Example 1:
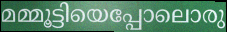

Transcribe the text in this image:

മമ്മൂട്ടിയെപ്പോലൊരു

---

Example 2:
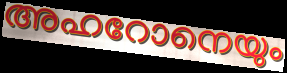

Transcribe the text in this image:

അഹറോനെയും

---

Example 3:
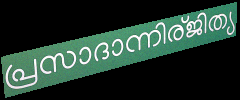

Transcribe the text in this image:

പ്രസാദാന്നിര്ജിത്യ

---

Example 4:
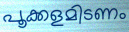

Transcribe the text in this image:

പൂക്കളമിടണം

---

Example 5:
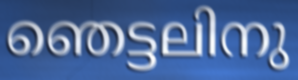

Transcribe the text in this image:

ഞെട്ടലിനു